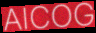
AICOG